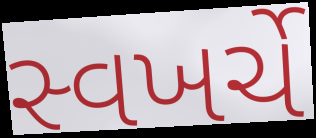
સ્વખર્ચે